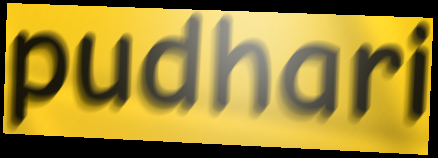
pudhari